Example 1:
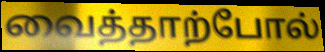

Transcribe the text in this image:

வைத்தாற்போல்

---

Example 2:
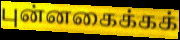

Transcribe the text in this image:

புன்னகைக்கக்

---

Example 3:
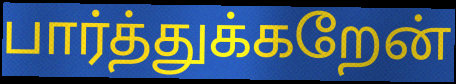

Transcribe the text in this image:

பார்த்துக்கறேன்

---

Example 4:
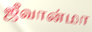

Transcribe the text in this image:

ஜீவான்மா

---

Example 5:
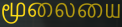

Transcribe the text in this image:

மூலையை